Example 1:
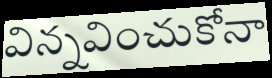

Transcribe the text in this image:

విన్నవించుకోనా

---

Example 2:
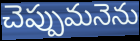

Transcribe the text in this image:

చెప్పుమనెను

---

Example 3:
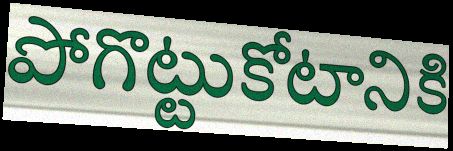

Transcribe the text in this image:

పోగొట్టుకోటానికి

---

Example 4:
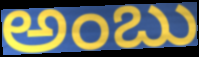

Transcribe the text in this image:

అంబు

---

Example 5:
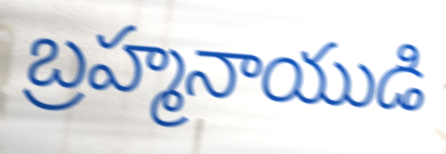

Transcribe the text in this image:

బ్రహ్మనాయుడి